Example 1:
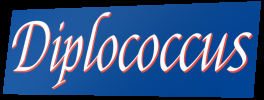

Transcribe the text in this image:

Diplococcus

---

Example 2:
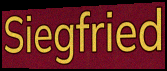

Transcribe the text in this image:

Siegfried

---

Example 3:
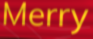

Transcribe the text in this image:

Merry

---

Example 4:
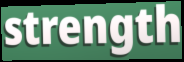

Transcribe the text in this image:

strength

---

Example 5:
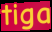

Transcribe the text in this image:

tiga